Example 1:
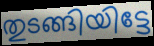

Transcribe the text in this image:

തുടങ്ങിയിട്ടേ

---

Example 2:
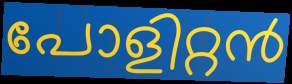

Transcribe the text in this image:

പോളിറ്റൻ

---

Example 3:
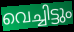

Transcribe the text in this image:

വെച്ചിട്ടും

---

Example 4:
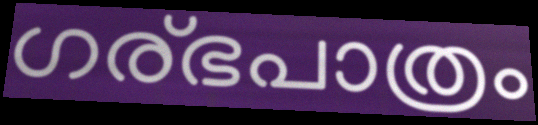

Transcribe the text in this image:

ഗര്ഭപാത്രം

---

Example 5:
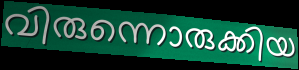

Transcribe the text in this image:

വിരുന്നൊരുക്കിയ